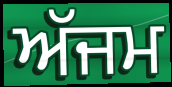
ਅੱਜਮ